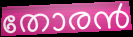
തോരൻ